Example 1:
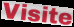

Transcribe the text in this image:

Visite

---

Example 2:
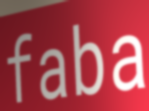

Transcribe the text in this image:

faba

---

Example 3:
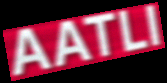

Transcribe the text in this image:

AATLI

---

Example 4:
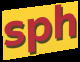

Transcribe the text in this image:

sph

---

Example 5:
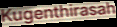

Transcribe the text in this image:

Kugenthirasah